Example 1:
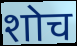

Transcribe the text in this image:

शोच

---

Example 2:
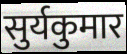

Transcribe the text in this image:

सुर्यकुमार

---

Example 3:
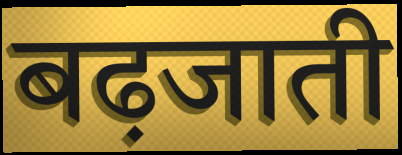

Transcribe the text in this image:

बढ़जाती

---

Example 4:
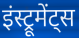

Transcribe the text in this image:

इंस्ट्रूमेंट्स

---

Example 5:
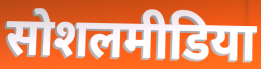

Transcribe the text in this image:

सोशलमीडिया